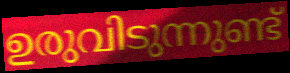
ഉരുവിടുന്നുണ്ട്